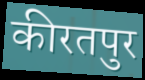
कीरतपुर